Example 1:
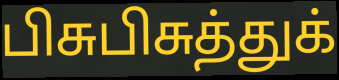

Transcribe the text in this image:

பிசுபிசுத்துக்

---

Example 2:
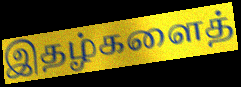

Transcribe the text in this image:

இதழ்களைத்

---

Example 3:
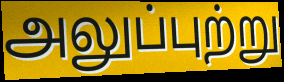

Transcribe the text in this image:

அலுப்புற்று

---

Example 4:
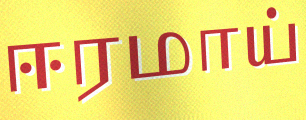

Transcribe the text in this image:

ஈரமாய்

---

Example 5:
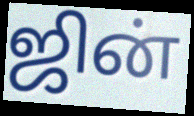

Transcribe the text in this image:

ஜின்